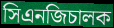
সিএনজিচালক